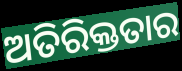
ଅତିରିକ୍ତତାର